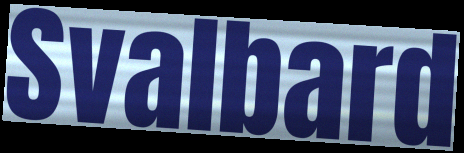
Svalbard